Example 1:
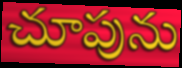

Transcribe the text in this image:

చూపును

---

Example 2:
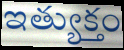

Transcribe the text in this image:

ఇత్యుక్తం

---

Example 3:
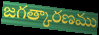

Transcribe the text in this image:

జగత్కారణము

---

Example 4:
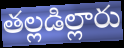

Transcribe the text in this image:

తల్లడిల్లారు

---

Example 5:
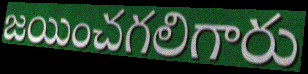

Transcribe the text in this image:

జయించగలిగారు